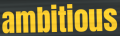
ambitious